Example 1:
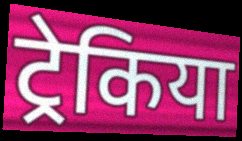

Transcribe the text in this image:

ट्रेकिया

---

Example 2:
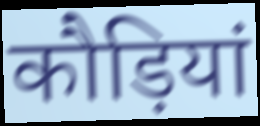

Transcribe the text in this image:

कौड़ियां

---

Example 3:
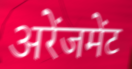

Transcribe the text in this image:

अरेंजमेंट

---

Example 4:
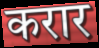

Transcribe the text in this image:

करार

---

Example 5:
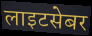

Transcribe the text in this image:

लाइटसेबर